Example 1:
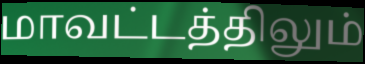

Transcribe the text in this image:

மாவட்டத்திலும்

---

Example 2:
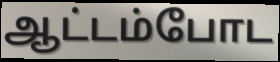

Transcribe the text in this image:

ஆட்டம்போட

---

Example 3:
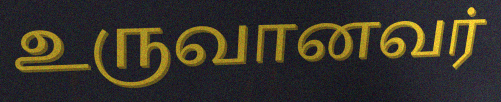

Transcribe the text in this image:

உருவானவர்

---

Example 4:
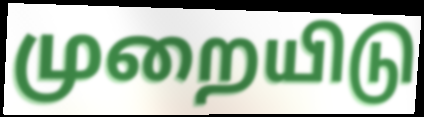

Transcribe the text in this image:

முறையிடு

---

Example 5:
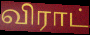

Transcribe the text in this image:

விராட்